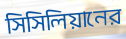
সিসিলিয়ানের